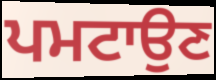
ਪਮਟਾਉਣ